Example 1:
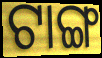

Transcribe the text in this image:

ଟାଙ୍ଗ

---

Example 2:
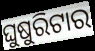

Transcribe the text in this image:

ଘୁଷୁରିଟାର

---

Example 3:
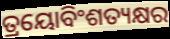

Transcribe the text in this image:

ତ୍ରୟୋବିଂଶତ୍ୟକ୍ଷର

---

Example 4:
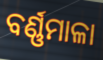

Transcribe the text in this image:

ବର୍ଣ୍ଣମାଳା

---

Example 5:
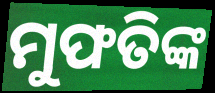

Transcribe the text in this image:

ମୁଫତିଙ୍କ